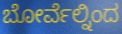
ಬೋರ್ವೆಲ್ನಿಂದ